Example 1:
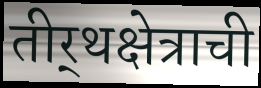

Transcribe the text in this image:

तीर्थक्षेत्राची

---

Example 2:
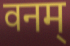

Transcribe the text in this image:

वनम्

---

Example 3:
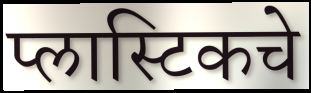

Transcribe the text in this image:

प्लास्टिकचे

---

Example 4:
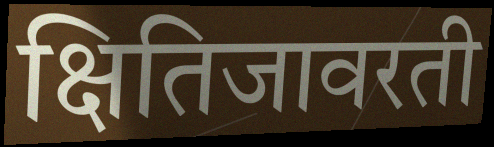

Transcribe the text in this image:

क्षितिजावरती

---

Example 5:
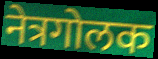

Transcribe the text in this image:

नेत्रगोलक